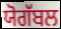
ਯੋਗੱਬਲ